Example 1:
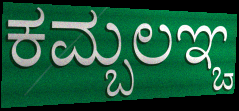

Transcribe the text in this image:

ಕಮ್ಬಲಞ್ಚ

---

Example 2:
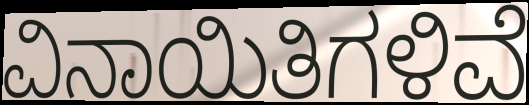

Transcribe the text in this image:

ವಿನಾಯಿತಿಗಳಿವೆ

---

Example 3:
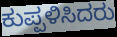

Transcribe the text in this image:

ಕುಪ್ಪಳಿಸಿದರು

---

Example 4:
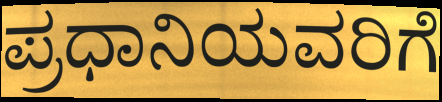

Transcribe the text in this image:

ಪ್ರಧಾನಿಯವರಿಗೆ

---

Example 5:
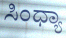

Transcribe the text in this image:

ಸಿಂಧ್ಯಾ